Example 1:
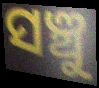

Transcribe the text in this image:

ସଞ୍ଚୁ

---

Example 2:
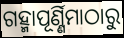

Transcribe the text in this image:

ଗହ୍ମାପୂର୍ଣ୍ଣିମାଠାରୁ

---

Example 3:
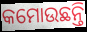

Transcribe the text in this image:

କମୋଉଛନ୍ତି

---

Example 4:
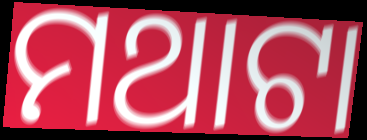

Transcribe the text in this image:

ମଥାଟା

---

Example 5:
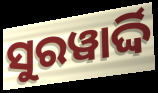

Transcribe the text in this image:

ସୁରୱାର୍ଦ୍ଦି